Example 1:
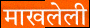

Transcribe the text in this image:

माखलेली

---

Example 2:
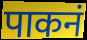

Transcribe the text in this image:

पाकनं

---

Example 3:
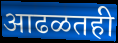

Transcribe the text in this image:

आढळतही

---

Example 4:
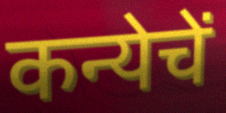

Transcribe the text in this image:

कन्येचें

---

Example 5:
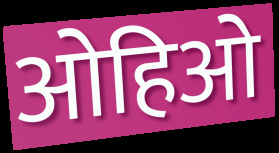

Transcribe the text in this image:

ओहिओ